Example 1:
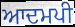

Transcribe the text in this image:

ਆਦਮਪੀ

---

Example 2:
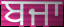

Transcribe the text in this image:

ਬਜਾ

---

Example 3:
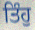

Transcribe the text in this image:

ਤਿੰਹੁ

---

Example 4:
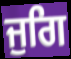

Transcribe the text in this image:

ਜੁਗਿ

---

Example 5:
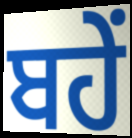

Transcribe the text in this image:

ਬਹੇਂ